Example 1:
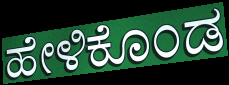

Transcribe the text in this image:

ಹೇಳಿಕೊಂಡ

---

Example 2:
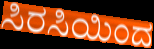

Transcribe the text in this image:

ಸಿರಸಿಯಿಂದ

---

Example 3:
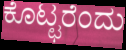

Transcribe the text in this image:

ಕೊಟ್ಟರೆಂದು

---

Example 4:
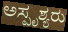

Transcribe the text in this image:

ಅಸ್ಪೃಶ್ಯರು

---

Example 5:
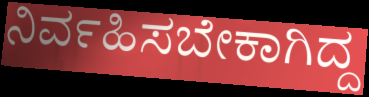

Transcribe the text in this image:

ನಿರ್ವಹಿಸಬೇಕಾಗಿದ್ದ